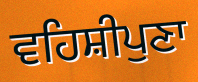
ਵਹਿਸ਼ੀਪੁਣਾ